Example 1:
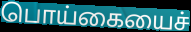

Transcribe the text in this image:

பொய்கையைச்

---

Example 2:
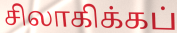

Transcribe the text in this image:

சிலாகிக்கப்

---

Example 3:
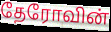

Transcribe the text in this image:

தேரோவின்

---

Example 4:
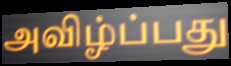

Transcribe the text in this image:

அவிழ்ப்பது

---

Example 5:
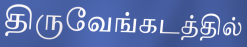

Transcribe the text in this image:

திருவேங்கடத்தில்